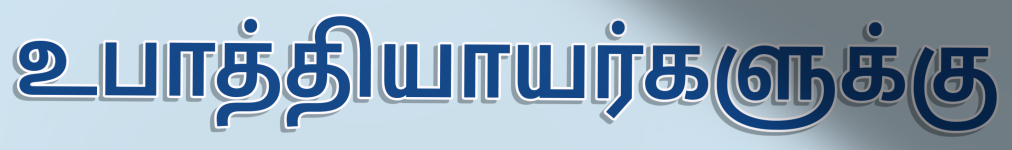
உபாத்தியாயர்களுக்கு